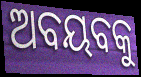
ଅବୟବକୁ